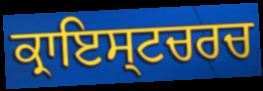
ਕ੍ਰਾਇਸ੍ਟਚਰਚ